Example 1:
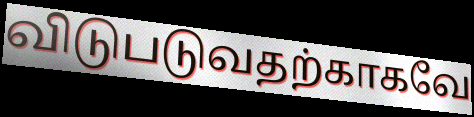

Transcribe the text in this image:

விடுபடுவதற்காகவே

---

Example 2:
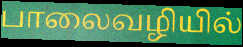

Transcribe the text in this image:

பாலைவழியில்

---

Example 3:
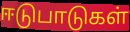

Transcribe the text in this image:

ஈடுபாடுகள்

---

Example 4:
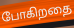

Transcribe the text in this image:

போகிறதை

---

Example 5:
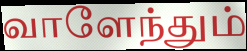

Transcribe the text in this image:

வாளேந்தும்